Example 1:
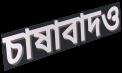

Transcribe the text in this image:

চাষাবাদও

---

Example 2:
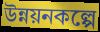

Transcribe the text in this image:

উন্নয়নকল্পে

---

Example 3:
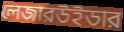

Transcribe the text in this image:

লেজারউইডার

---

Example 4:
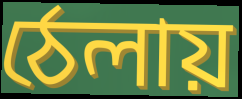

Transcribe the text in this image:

ঠেলায়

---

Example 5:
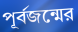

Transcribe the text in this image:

পূর্বজন্মের